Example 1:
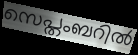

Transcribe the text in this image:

സെപ്തംബറിൽ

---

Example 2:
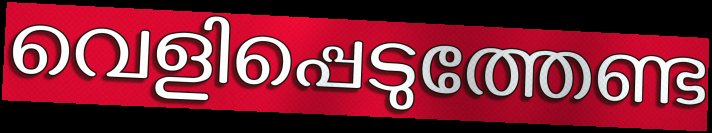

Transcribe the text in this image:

വെളിപ്പെടുത്തേണ്ട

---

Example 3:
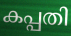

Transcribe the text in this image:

കപ്പതി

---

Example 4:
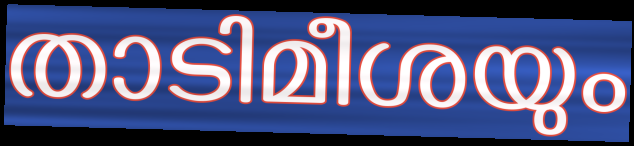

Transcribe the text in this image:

താടിമീശയും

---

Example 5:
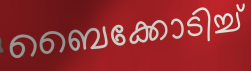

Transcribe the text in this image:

ബൈക്കോടിച്ച്